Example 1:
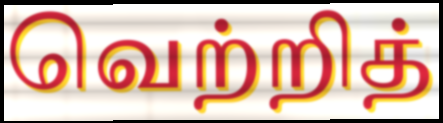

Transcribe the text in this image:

வெற்றித்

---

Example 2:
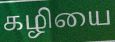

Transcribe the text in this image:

கழியை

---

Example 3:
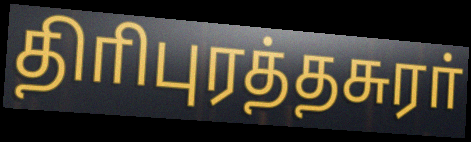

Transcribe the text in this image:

திரிபுரத்தசுரர்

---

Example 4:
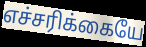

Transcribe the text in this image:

எச்சரிக்கையே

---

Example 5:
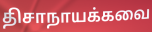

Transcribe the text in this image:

திசாநாயக்கவை